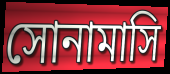
সোনামাসি